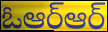
ఓఆర్ఆర్